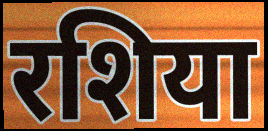
रशिया